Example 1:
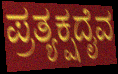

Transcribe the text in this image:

ಪ್ರತ್ಯಕ್ಷದೈವ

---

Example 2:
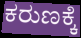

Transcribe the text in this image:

ಕರುಣಕ್ಕೆ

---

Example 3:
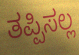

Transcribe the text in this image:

ತಪ್ಪಿಸಲ್ಲ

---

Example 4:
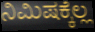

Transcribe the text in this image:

ನಿಮಿಷಕ್ಕೆಲ್ಲ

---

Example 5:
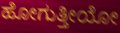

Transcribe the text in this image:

ಹೋಗುತ್ತೀಯೋ